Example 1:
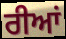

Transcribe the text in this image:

ਰੀਆਂ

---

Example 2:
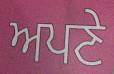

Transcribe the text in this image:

ਅਪਣੇ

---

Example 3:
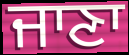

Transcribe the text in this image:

ਜਾਣਾ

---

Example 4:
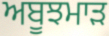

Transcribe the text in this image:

ਅਬੂਝਮਾੜ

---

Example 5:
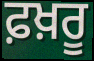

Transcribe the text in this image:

ਫ਼ਖ਼ਰੂ